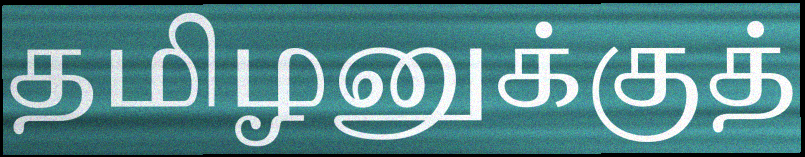
தமிழனுக்குத்